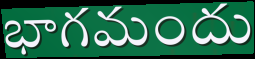
భాగమందు